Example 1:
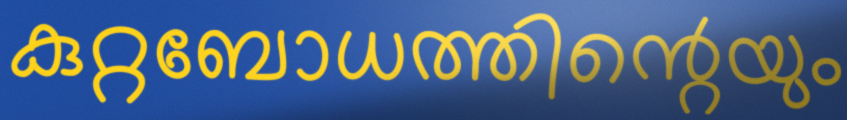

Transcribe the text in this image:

കുറ്റബോധത്തിന്റെയും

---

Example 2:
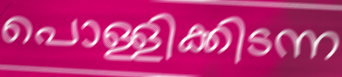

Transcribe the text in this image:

പൊള്ളിക്കിടന്ന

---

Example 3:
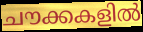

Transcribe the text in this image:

ചൗക്കകളിൽ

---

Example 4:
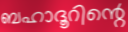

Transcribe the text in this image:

ബഹാദൂറിന്റെ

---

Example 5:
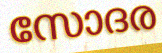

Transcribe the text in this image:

സോദര